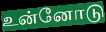
உன்னோடு